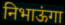
निभाऊंगा